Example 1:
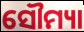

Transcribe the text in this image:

ସୌମ୍ୟା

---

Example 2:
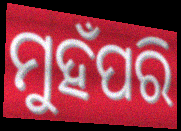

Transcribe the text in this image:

ମୁହଁପରି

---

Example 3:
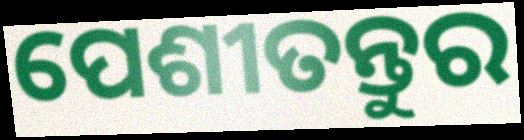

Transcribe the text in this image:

ପେଶୀତନ୍ତୁର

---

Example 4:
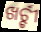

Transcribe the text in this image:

ଖର୍ଚ୍ଚୀ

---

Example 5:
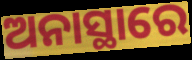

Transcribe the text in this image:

ଅନାସ୍ଥାରେ